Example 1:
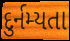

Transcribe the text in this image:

દુર્નમ્યતા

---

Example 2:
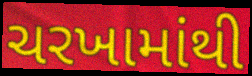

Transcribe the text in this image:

ચરખામાંથી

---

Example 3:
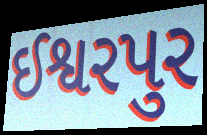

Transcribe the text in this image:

ઈશ્વરપુર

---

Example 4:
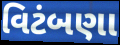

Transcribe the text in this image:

વિટંબણા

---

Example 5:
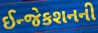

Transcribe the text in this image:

ઈન્જેકશનની